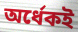
অর্ধেকই